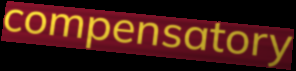
compensatory